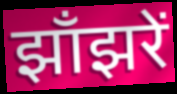
झाँझरें